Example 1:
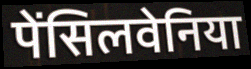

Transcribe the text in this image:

पेंसिलवेनिया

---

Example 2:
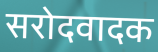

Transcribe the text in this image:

सरोदवादक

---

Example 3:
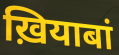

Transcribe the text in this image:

ख़ियाबां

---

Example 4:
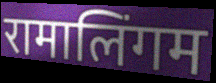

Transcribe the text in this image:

रामालिंगम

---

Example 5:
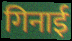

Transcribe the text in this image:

गिनाई